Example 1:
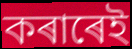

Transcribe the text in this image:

কৰাৰেই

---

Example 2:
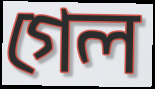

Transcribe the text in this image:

গেল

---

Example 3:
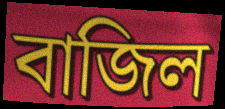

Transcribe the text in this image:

বাজিল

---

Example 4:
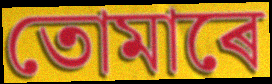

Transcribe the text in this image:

তোমাৰে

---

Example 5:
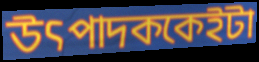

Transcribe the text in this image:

উৎপাদককেইটা